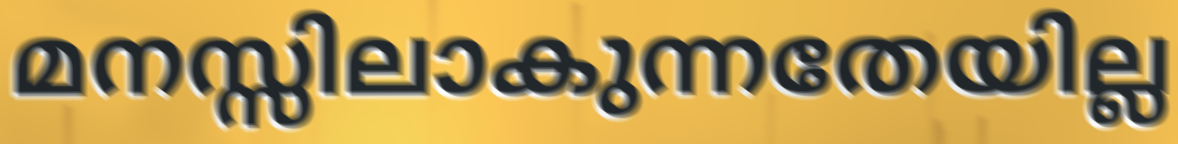
മനസ്സിലാകുന്നതേയില്ല